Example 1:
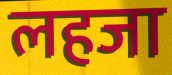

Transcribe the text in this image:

लहजा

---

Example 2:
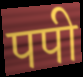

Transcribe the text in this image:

पपी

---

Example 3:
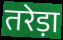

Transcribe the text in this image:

तरेड़ा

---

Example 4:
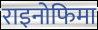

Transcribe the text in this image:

राइनोफिमा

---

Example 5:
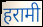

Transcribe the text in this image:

हरामी